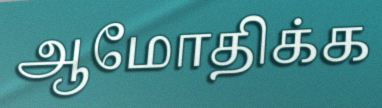
ஆமோதிக்க